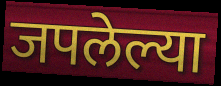
जपलेल्या